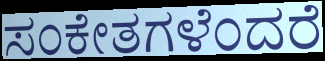
ಸಂಕೇತಗಳೆಂದರೆ